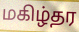
மகிழ்தர